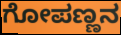
ಗೋಪಣ್ಣನ